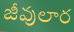
జీవులార